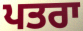
ਪਤਰਾ